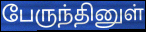
பேருந்தினுள்